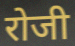
रोजी